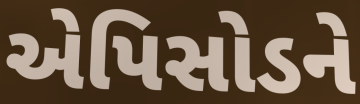
એપિસોડને